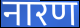
नारण